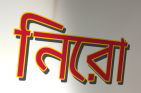
নিরো